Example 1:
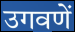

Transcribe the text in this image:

उगवणें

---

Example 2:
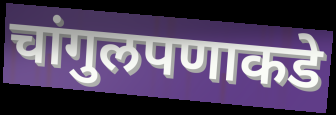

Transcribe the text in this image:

चांगुलपणाकडे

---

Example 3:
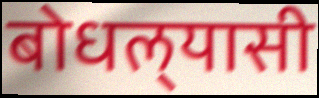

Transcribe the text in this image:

बोधल्यासी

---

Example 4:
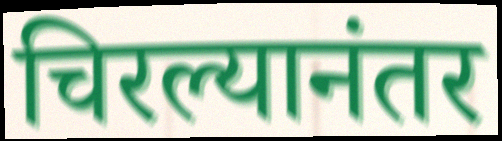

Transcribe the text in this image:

चिरल्यानंतर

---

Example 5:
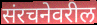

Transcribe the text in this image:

संरचनेवरील